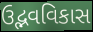
ઉદ્ભવવિકાસ